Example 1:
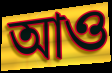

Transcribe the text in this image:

আও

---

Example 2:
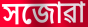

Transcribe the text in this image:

সজোৱা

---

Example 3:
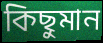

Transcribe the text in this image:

কিছুমান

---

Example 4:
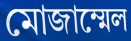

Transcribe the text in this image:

মোজাম্মেল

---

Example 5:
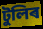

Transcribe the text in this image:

টুলিৰ